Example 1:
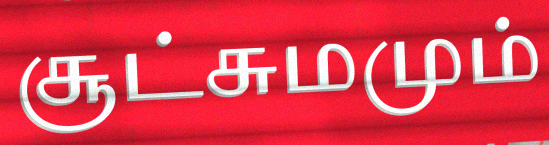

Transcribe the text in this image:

சூட்சுமமும்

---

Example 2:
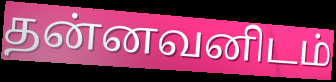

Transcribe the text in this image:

தன்னவனிடம்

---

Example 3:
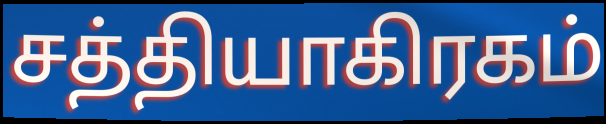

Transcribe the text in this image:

சத்தியாகிரகம்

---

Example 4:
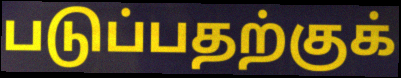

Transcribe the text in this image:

படுப்பதற்குக்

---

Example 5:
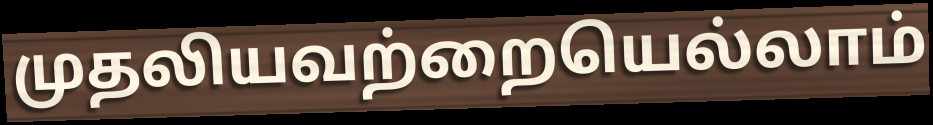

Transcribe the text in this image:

முதலியவற்றையெல்லாம்